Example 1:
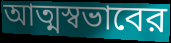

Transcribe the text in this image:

আত্মস্বভাবের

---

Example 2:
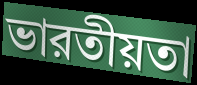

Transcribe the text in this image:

ভারতীয়তা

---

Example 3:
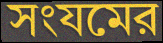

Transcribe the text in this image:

সংযমের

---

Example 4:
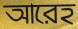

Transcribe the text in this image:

আরেহ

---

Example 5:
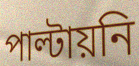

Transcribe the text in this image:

পাল্টায়নি